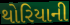
થોરિયાની